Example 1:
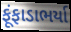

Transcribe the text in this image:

ફૂંફાડાભર્યા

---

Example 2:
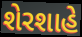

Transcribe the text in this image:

શેરશાહે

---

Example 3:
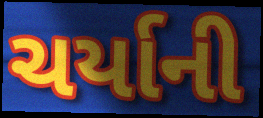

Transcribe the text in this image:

ચર્યાની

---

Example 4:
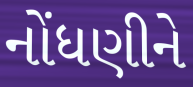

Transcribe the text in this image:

નોંધણીને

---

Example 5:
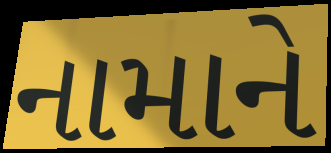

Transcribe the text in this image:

નામાને